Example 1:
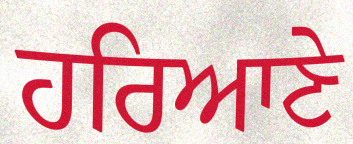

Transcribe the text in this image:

ਹਰਿਆਣੇ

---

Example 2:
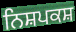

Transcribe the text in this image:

ਨਿਸ਼ਪਕਸ਼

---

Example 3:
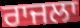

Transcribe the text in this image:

ਰਾਜਲਾ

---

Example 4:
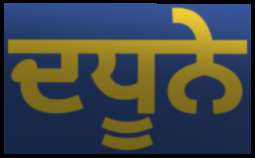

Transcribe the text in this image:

ਦਧੂਨੇ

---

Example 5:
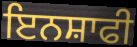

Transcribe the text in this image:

ਇਨਸ਼ਾਫੀ